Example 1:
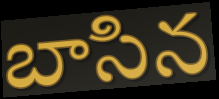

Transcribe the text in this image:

బాసిన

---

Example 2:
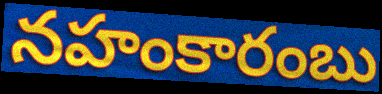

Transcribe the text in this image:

నహంకారంబు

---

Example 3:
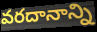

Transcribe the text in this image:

వరదానాన్ని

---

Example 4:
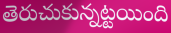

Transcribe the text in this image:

తెరుచుకున్నట్టయింది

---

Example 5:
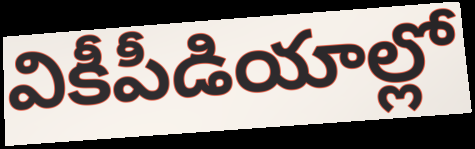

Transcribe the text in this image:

వికీపీడియాల్లో